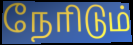
நேரிடும்